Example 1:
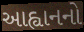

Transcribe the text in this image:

આહ્વાનનો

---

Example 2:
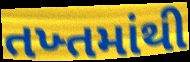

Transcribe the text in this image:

તખ્તમાંથી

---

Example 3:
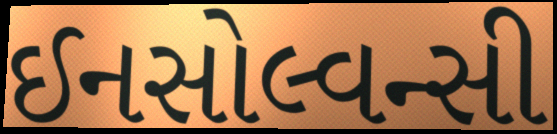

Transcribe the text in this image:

ઈનસોલ્વન્સી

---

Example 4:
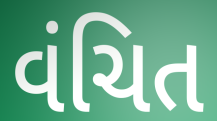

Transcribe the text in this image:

વંચિત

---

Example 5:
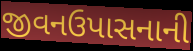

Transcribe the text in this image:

જીવનઉપાસનાની